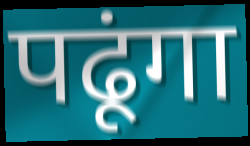
पढूंगा